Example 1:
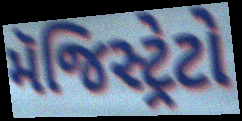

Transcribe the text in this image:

મૅજિસ્ટ્રેટો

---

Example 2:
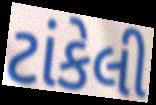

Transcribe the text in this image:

ટાંકેલી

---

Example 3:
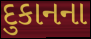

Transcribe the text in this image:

દુકાનના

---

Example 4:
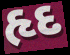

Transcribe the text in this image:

હૃદ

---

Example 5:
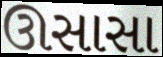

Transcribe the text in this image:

ઊસાસા